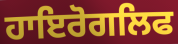
ਹਾਇਰੋਗਲਿਫ